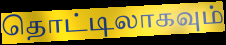
தொட்டிலாகவும்